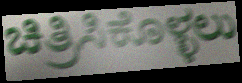
ಚಿತ್ರಿಸಿಕೊಳ್ಳಲು